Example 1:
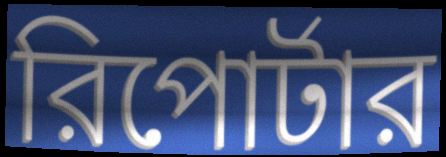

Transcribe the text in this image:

রিপোর্টার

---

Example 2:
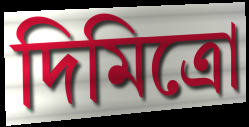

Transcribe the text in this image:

দিমিত্রো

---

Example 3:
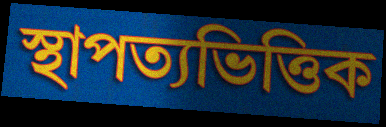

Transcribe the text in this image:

স্থাপত্যভিত্তিক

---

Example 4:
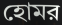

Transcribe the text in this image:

হোমর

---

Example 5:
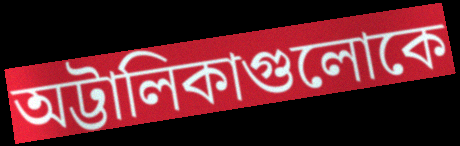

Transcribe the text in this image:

অট্টালিকাগুলোকে